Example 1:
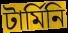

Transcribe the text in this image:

টার্মিনি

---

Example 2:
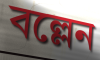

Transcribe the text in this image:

বল্লেন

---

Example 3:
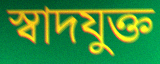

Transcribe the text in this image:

স্বাদযুক্ত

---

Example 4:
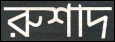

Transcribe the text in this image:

রুশাদ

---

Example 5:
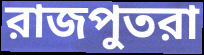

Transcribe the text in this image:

রাজপুতরা